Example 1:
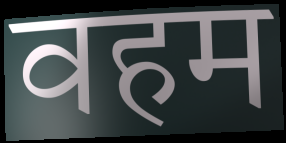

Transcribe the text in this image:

वहम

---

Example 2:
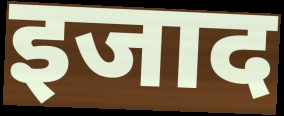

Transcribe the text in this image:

इजाद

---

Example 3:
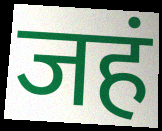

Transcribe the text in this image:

जहं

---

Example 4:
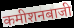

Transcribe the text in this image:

कमीशनबाजी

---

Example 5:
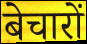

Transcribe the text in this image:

बेचारों